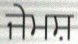
ਜੇਮਸ਼